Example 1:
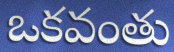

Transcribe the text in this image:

ఒకవంతు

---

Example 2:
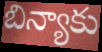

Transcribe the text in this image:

బిన్యాకు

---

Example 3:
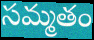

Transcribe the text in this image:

సమ్మతం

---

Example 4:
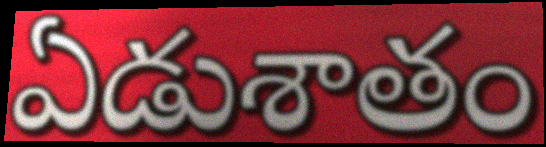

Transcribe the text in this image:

ఏడుశాతం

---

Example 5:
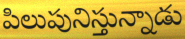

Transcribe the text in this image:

పిలుపునిస్తున్నాడు